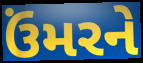
ઉંમરને